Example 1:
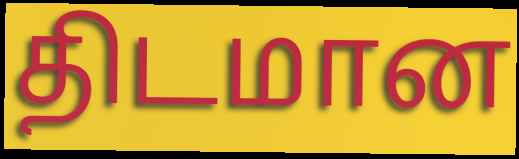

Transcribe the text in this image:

திடமான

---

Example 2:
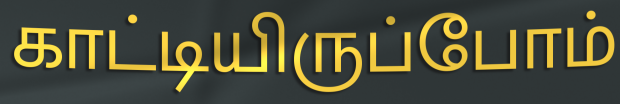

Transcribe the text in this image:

காட்டியிருப்போம்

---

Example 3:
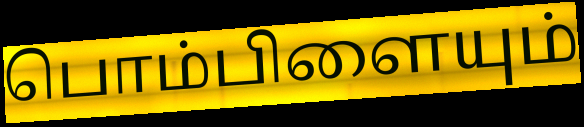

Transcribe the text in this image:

பொம்பிளையும்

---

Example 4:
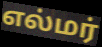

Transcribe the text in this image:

எல்மர்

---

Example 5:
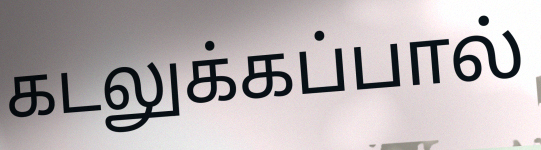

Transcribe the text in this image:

கடலுக்கப்பால்